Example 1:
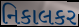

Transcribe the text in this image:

નિકાલકર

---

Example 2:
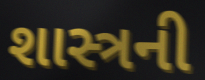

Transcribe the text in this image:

શાસ્ત્રની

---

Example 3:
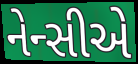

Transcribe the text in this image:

નેન્સીએ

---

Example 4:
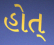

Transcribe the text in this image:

હોત્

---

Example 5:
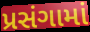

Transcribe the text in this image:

પ્રસંગામાં